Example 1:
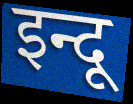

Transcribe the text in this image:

इन्दू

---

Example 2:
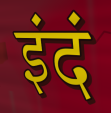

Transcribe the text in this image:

इंदं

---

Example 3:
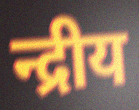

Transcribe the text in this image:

न्द्रीय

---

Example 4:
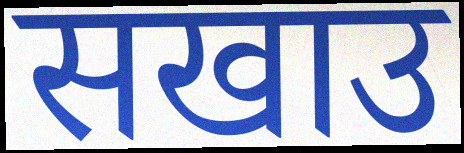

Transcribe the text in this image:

सखाउ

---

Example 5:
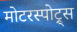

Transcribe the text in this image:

मोटरस्पोट्र्स